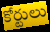
కోర్టులు